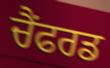
ਚੈਂਫਰਡ